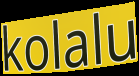
kolalu